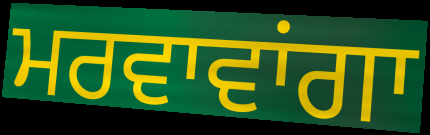
ਮਰਵਾਵਾਂਗਾ